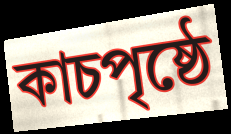
কাচপৃষ্ঠে